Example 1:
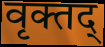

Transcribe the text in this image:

वृक्तद्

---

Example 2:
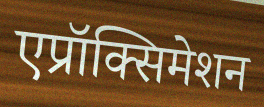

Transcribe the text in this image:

एप्रॉक्सिमेशन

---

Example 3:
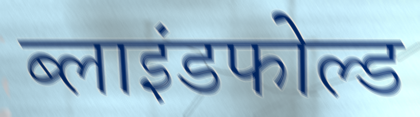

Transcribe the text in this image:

ब्लाइंडफोल्ड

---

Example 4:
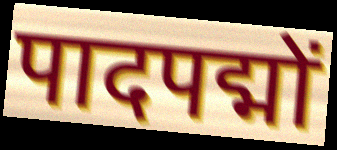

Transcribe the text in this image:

पादपद्मों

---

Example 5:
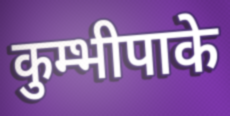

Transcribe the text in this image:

कुम्भीपाके